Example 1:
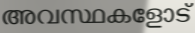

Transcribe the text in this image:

അവസ്ഥകളോട്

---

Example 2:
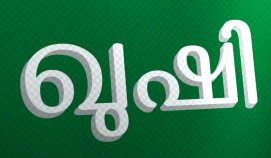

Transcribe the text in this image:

ഖുഷി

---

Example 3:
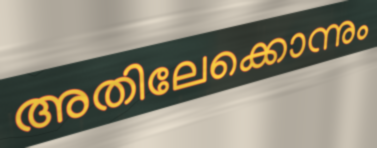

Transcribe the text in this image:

അതിലേക്കൊന്നും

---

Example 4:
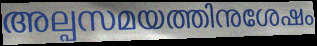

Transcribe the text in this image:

അല്പസമയത്തിനുശേഷം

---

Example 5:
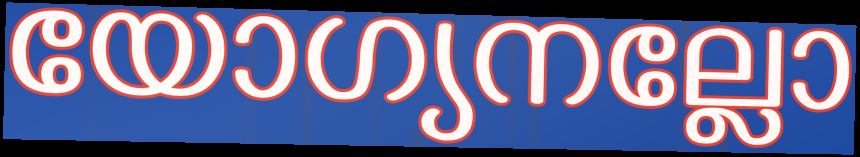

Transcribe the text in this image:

യോഗ്യനല്ലോ